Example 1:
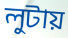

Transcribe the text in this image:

লুটায়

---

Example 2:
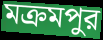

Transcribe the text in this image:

মক্রমপুর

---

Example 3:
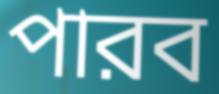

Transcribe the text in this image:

পারব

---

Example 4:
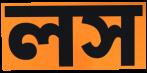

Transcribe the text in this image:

লস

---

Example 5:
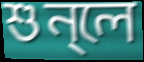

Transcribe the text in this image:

শুন্‌লে